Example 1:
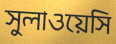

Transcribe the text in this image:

সুলাওয়েসি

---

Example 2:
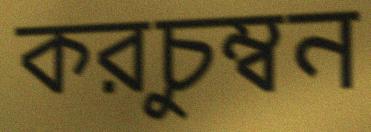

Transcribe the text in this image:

করচুম্বন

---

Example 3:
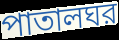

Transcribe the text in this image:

পাতালঘর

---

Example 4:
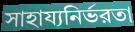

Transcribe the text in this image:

সাহায্যনির্ভরতা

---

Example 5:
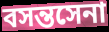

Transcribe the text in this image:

বসন্তসেনা